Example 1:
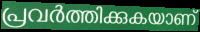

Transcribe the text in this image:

പ്രവർത്തിക്കുകയാണ്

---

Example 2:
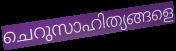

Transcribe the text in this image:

ചെറുസാഹിത്യങ്ങളെ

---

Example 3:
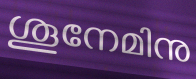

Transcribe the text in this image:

ശൂനേമിനു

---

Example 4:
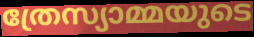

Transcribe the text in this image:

ത്രേസ്യാമ്മയുടെ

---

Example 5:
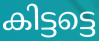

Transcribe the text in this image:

കിട്ടട്ടെ